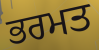
ਭਰਮਤ